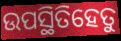
ଉପସ୍ଥିତିହେତୁ